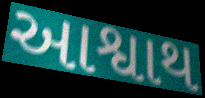
આશ્વાથ